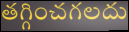
తగ్గించగలదు